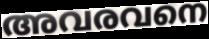
അവരവനെ